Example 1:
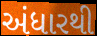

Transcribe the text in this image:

અંધારથી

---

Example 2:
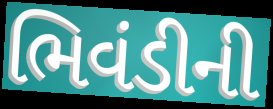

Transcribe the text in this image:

ભિવંડીની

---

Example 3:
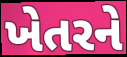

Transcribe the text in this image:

ખેતરને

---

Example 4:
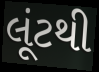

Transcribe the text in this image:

લૂંટથી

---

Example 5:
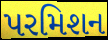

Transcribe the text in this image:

પરમિશન